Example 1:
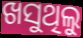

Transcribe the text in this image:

ଖସୁଥିଲୁ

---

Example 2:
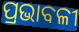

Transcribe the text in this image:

ପ୍ରଭାବଳୀ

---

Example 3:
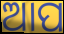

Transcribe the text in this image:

ଆପ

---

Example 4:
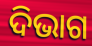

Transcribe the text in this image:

ଦିଭାଗ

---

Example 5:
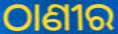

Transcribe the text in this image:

ଠାଣୀର